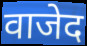
वाजेद